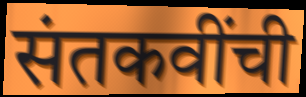
संतकवींची